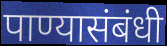
पाण्यासंबंधी